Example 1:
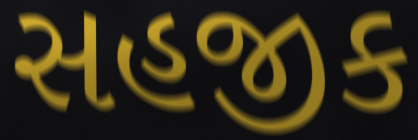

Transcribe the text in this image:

સહજીક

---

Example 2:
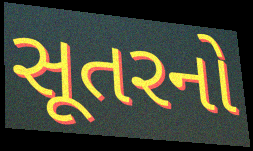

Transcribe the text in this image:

સૂતરનો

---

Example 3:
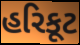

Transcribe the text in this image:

હરિકૂટ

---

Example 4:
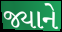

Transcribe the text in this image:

જ્યાને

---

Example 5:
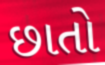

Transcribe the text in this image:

છાતો